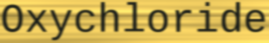
Oxychloride